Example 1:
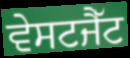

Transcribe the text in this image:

ਵੇਸਟਜੈੱਟ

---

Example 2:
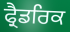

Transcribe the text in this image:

ਫ੍ਰੈਡਰਿਕ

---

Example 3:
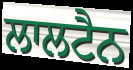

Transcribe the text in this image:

ਲਾਲਟੈਨ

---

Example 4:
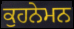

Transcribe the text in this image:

ਕੁਹਨੇਮਨ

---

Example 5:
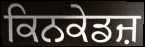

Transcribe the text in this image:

ਕਿਨਕੇਡਜ਼